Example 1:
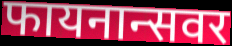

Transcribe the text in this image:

फायनान्सवर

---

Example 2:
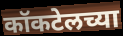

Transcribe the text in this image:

कॉकटेलच्या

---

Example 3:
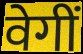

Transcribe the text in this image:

वेगीं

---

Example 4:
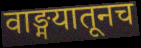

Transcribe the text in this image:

वाङ्मयातूनच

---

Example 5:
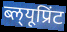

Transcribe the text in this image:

ब्ल्यूप्रिंट